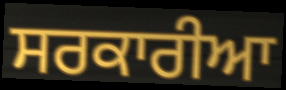
ਸਰਕਾਰੀਆ